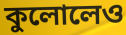
কুলোলেও